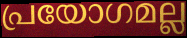
പ്രയോഗമല്ല